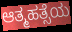
ಆತ್ಮಹತ್ಸೆಯ